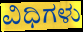
ವಿಧಿಗಳು